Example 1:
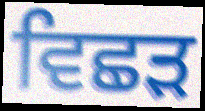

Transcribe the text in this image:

ਵਿਛਡ਼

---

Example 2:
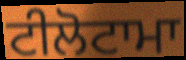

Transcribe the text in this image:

ਟੀਲੋਟਾਮਾ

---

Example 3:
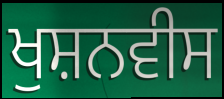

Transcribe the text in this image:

ਖੁਸ਼ਨਵੀਸ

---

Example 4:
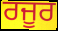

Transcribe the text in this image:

ਰਜੂਰ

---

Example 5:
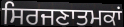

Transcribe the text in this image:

ਸਿਰਜਣਾਤਮਕਾਂ